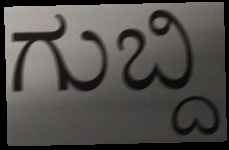
ಗುಬ್ದಿ